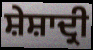
ਸ਼ੇਸ਼ਾਦ੍ਰੀ